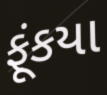
ફૂંકયા